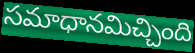
సమాధానమిచ్చింది